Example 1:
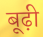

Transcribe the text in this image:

बूढ़ी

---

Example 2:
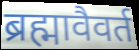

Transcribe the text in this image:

ब्रह्मावैवर्त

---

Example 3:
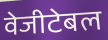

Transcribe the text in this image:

वेजीटेबल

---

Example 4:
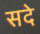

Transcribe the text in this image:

सदे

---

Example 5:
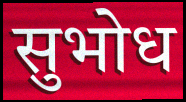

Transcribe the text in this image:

सुभोध